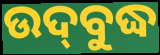
ଉଦ୍‍ବୁଦ୍ଧ